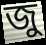
জু